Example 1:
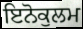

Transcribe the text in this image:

ਇਨੋਕੁਲਮ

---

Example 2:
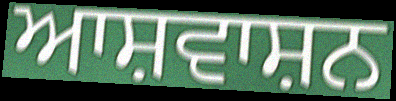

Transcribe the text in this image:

ਆਸ਼ਵਾਸ਼ਨ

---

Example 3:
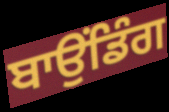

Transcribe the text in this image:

ਬਾਉਂਡਿੰਗ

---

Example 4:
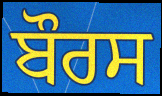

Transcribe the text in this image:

ਬੌਰਸ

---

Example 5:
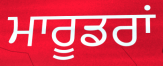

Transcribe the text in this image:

ਮਾਰੂਡਰਾਂ